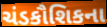
ચંડકૌશિકના